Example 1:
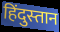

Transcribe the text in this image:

हिंदुस्‍तान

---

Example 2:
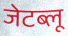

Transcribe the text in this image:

जेटब्लू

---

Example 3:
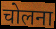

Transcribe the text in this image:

चोलना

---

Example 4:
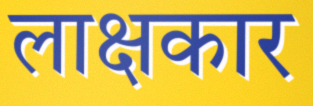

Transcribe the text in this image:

लाक्षकार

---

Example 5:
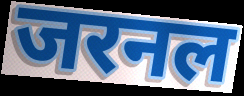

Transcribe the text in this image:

जरनल